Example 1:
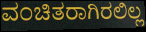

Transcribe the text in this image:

ವಂಚಿತರಾಗಿರಲಿಲ್ಲ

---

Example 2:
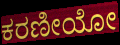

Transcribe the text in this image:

ಕರಣೀಯೋ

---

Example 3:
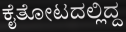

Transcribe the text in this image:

ಕೈತೋಟದಲ್ಲಿದ್ದ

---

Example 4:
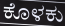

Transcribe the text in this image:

ಕೊಳಕು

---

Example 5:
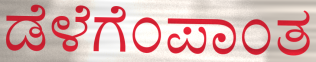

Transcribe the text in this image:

ಡೆಳೆಗೆಂಪಾಂತ